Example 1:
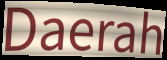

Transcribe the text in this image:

Daerah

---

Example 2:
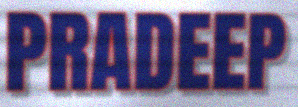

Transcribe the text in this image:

PRADEEP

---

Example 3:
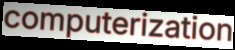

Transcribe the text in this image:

computerization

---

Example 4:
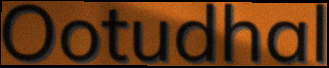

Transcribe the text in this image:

Ootudhal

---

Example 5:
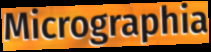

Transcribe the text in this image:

Micrographia